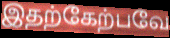
இதற்கேற்பவே